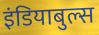
इंडियाबुल्‍स